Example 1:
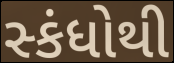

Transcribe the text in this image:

સ્કંધોથી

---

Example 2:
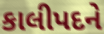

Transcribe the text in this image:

કાલીપદને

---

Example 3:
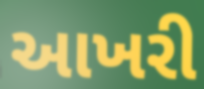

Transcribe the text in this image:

આખરી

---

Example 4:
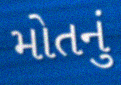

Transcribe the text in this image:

મોતનું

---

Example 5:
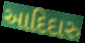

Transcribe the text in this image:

આદિદારુ